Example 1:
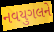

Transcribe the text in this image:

નવયુગલને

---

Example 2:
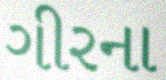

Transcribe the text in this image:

ગીરના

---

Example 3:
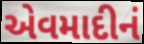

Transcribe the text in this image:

એવમાદીનં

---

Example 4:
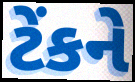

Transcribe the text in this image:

ટેંકને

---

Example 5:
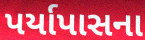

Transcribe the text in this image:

પર્યાપાસના